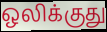
ஒலிக்குது